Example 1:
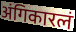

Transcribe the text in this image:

अंगिकारलं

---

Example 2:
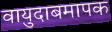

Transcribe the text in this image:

वायुदाबमापक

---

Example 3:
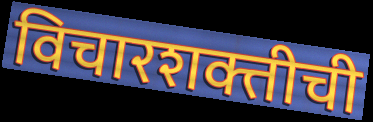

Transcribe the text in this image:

विचारशक्तीची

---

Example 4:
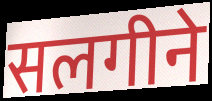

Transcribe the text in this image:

सलगीने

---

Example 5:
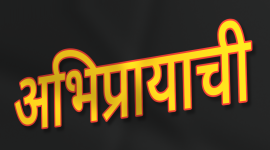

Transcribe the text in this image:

अभिप्रायाची